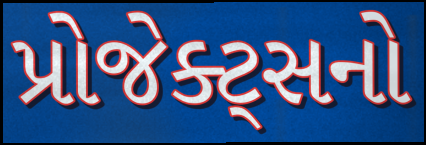
પ્રોજેક્ટ્સનો